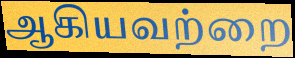
ஆகியவற்றை